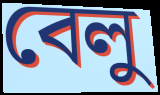
বেলু